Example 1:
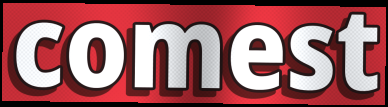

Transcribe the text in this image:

comest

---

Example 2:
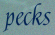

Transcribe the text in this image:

pecks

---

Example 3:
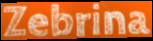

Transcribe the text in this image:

Zebrina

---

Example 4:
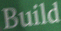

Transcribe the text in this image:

Build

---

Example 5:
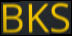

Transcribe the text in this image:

BKS